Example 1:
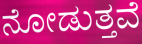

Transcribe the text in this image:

ನೋಡುತ್ತವೆ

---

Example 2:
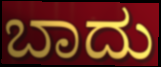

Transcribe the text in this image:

ಬಾದು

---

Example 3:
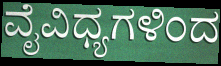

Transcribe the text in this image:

ವೈವಿಧ್ಯಗಳಿಂದ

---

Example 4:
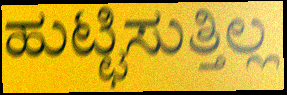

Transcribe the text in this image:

ಹುಟ್ಟಿಸುತ್ತಿಲ್ಲ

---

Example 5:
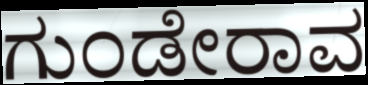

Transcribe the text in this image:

ಗುಂಡೇರಾವ